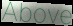
Above